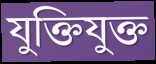
যুক্তিযুক্ত